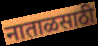
नाताळसाठी